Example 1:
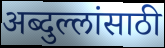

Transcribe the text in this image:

अब्दुल्लांसाठी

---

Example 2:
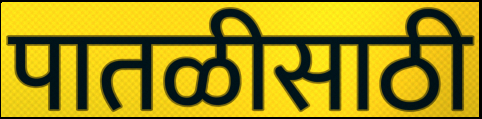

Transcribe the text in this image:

पातळीसाठी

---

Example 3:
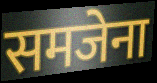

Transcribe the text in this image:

समजेना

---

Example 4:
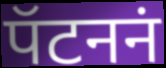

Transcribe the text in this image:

पॅटननं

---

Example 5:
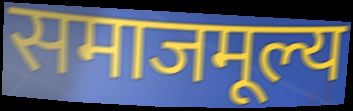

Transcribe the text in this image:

समाजमूल्य